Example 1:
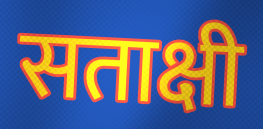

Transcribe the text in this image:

सताक्षी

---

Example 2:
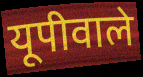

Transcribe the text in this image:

यूपीवाले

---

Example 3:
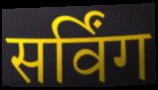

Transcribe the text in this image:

सर्विंग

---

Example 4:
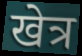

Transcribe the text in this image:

खेत्र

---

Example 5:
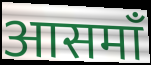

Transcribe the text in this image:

आसमाँ